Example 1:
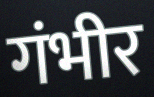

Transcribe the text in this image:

गंभीर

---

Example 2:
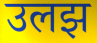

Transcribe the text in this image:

उलझ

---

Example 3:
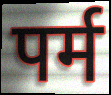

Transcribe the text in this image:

पर्म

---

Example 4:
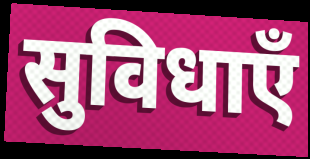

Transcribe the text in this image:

सुविधाएँ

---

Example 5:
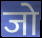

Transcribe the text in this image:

जो